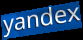
yandex